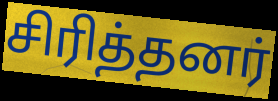
சிரித்தனர்